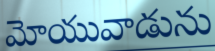
మోయువాడును